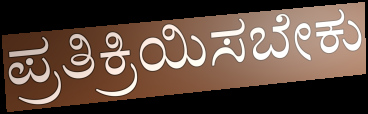
ಪ್ರತಿಕ್ರಿಯಿಸಬೇಕು